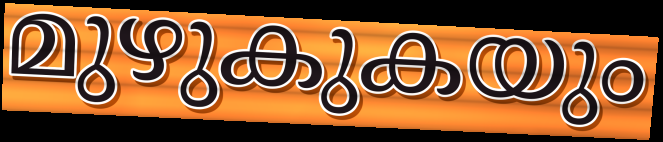
മുഴുകുകയും